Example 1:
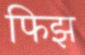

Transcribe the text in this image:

फिझ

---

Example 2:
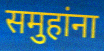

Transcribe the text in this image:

समुहांना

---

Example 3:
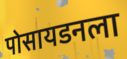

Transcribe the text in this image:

पोसायडनला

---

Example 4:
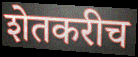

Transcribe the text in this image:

शेतकरीच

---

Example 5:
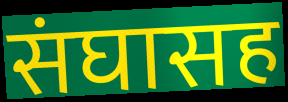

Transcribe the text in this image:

संघासह